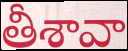
తీశావా